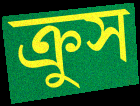
ক্রুস